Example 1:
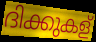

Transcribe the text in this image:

ദിക്കുകള്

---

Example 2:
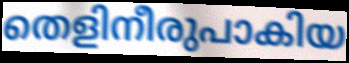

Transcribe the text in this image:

തെളിനീരുപാകിയ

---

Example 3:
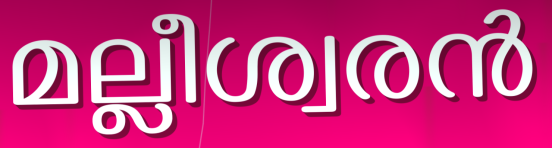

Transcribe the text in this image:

മല്ലീശ്വരൻ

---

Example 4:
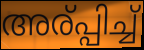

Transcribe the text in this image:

അര്പ്പിച്ച്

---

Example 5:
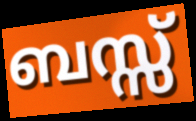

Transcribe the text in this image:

ബസ്സ്